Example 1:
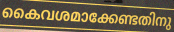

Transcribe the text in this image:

കൈവശമാക്കേണ്ടതിനു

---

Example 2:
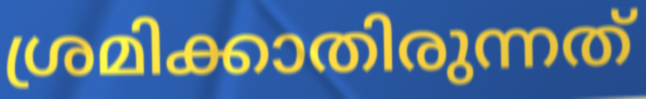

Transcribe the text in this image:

ശ്രമിക്കാതിരുന്നത്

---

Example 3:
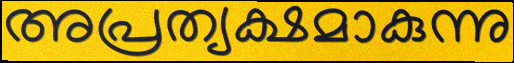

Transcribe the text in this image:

അപ്രത്യക്ഷമാകുന്നു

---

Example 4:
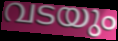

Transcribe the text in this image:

വടയും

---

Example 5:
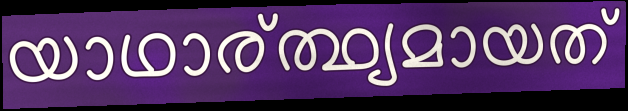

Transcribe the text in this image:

യാഥാര്ത്ഥ്യമായത്